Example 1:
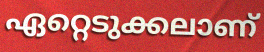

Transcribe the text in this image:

ഏറ്റെടുക്കലാണ്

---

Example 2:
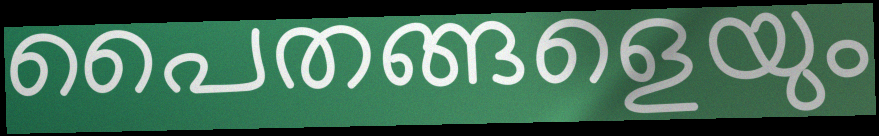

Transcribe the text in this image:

പൈതങ്ങളെയും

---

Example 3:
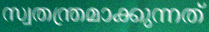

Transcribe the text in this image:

സ്വതന്ത്രമാക്കുന്നത്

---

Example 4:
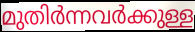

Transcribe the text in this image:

മുതിർന്നവർക്കുള്ള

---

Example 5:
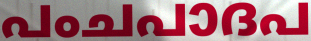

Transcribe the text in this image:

പംചപാദപ